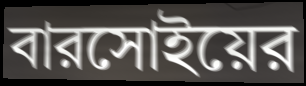
বারসোইয়ের